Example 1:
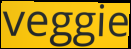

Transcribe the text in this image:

veggie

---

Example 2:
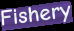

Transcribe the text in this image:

Fishery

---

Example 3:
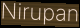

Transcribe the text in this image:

Nirupan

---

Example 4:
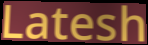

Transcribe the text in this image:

Latesh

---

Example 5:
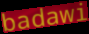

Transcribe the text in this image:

badawi